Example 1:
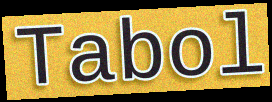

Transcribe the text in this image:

Tabol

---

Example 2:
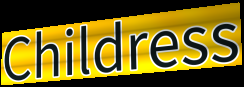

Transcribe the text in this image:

Childress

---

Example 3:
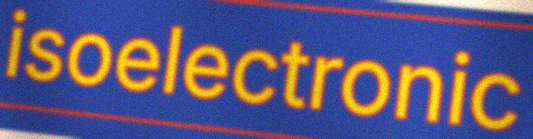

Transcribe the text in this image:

isoelectronic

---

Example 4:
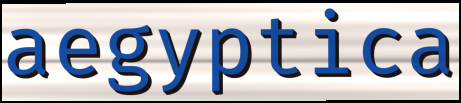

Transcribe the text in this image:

aegyptica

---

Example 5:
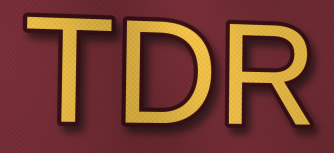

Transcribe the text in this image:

TDR